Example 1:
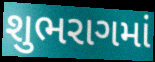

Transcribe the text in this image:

શુભરાગમાં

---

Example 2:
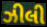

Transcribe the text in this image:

ઝીલી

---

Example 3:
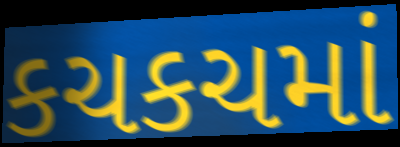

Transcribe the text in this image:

કચકચમાં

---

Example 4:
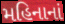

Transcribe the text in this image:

મહિનાનાં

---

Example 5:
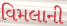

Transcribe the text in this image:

વિમલાની